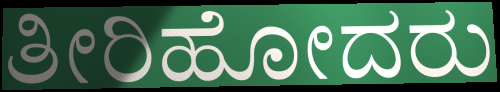
ತೀರಿಹೋದರು